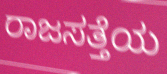
ರಾಜಸತ್ತೆಯ